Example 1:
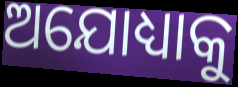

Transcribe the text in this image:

ଅଯୋଧ୍ୟାକୁ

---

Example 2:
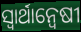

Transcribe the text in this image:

ସ୍ବାର୍ଥାନ୍ବେଷୀ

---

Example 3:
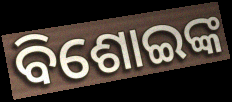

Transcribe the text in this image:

ବିଶୋଇଙ୍କ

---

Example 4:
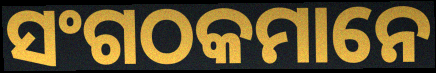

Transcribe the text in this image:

ସଂଗଠକମାନେ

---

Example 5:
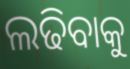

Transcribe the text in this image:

ଲଢିବାକୁ